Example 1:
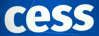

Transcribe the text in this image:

cess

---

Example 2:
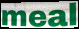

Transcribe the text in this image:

meal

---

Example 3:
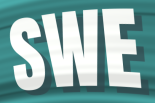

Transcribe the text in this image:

SWE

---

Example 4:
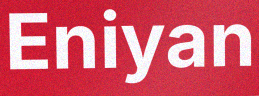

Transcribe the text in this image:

Eniyan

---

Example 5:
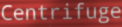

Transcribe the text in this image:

Centrifuge